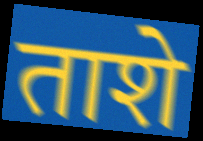
ताशे